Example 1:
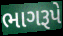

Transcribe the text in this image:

ભાગરૂપે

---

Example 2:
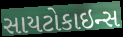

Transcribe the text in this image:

સાયટોકાઇન્સ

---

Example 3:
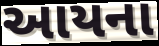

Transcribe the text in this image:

આયના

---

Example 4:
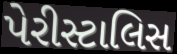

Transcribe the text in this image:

પેરીસ્ટાલિસ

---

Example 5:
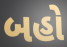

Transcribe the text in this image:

બહો